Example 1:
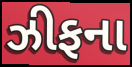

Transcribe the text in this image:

ઝીફના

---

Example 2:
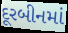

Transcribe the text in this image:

દૂરબીનમાં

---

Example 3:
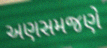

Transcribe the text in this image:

અણસમજણે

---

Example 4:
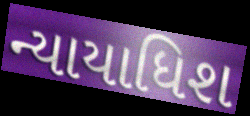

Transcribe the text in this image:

ન્યાયાધિશ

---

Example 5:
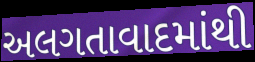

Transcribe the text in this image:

અલગતાવાદમાંથી